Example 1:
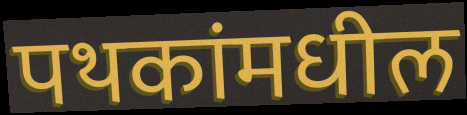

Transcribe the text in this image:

पथकांमधील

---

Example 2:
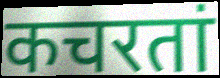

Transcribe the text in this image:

कचरतां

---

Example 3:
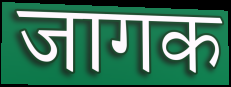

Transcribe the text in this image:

जागक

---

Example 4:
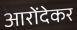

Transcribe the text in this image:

आरोंदेकर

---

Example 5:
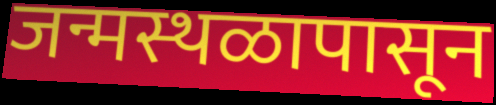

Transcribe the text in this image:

जन्मस्थळापासून